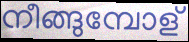
നീങ്ങുമ്പോള്